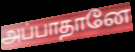
அப்பாதானே